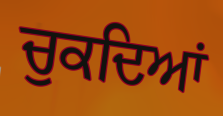
ਚੁਕਦਿਆਂ